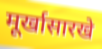
मूर्खासारखे